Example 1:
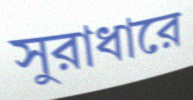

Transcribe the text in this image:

সুরাধারে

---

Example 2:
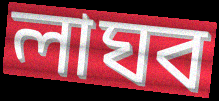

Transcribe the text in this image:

লাঘব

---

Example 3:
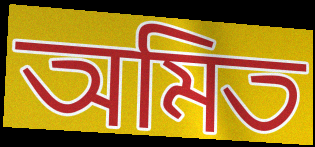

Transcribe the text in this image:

অমিত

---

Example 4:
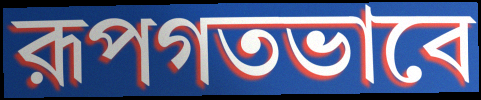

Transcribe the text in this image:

রূপগতভাবে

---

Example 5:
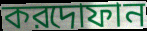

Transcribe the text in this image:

করদোফান